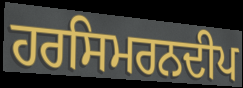
ਹਰਸਿਮਰਨਦੀਪ